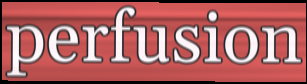
perfusion